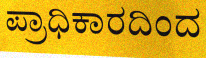
ಪ್ರಾಧಿಕಾರದಿಂದ